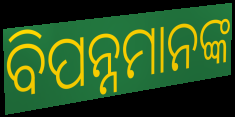
ବିପନ୍ନମାନଙ୍କ